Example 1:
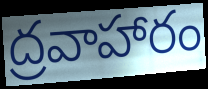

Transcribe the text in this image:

ద్రవాహారం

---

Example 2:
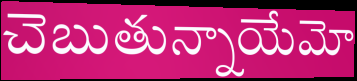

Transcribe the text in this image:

చెబుతున్నాయేమో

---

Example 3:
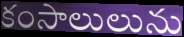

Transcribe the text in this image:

కంసాలులును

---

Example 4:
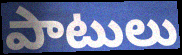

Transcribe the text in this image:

పాటులు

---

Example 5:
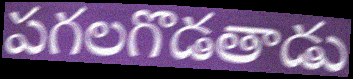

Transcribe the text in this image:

పగలగొడతాడు